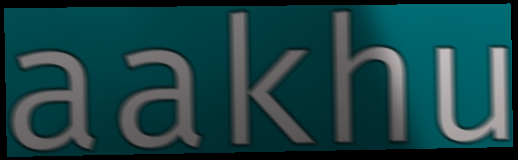
aakhu